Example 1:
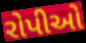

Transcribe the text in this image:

રોપીઓ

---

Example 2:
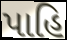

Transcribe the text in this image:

પાહિ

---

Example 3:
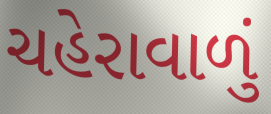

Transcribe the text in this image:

ચહેરાવાળું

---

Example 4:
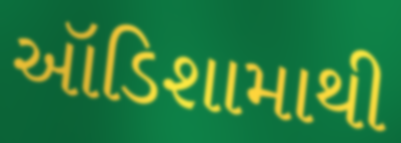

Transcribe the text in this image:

ઑડિશામાથી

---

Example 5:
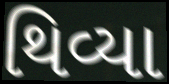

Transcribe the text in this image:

થિવ્યા